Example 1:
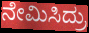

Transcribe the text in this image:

ನೇಮಿಸಿದ್ರು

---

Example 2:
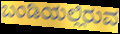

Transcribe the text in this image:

ಬಂಡಿಯಲ್ಲಿರುವ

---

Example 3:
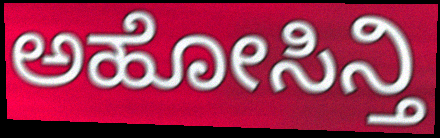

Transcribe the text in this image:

ಅಹೋಸಿನ್ತಿ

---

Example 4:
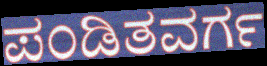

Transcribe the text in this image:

ಪಂಡಿತವರ್ಗ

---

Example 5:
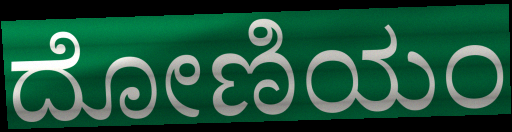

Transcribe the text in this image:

ದೋಣಿಯಂ